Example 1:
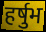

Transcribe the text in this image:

हर्षुभ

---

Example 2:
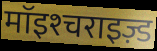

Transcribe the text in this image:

मॉइश्चराइज़्ड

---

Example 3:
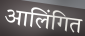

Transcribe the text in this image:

आलिंगित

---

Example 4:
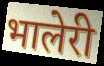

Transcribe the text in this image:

भालेरी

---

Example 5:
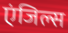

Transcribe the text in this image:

एंजिल्‍स